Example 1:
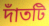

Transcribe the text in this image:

দাঁতটি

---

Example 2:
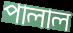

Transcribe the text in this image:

পালাল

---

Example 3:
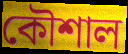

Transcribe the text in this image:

কৌশাল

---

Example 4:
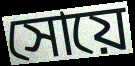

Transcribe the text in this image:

সোয়ে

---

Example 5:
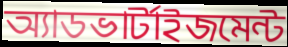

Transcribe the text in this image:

অ্যাডভার্টাইজমেন্ট